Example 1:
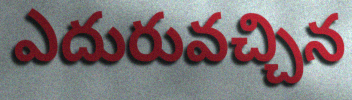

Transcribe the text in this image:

ఎదురువచ్చిన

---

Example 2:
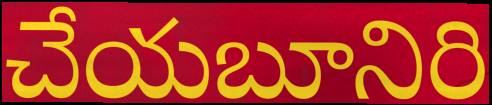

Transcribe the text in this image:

చేయబూనిరి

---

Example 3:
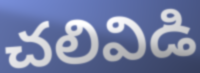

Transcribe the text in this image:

చలివిడి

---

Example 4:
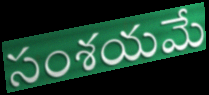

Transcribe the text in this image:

సంశయమే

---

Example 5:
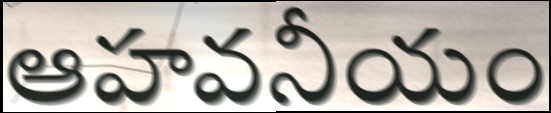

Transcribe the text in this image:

ఆహవనీయం